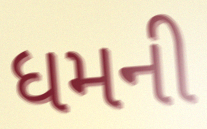
ધમની